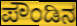
ಪೌಂಡಿನ